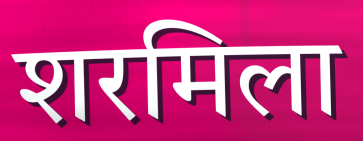
शरमिला